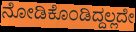
ನೋಡಿಕೊಂಡಿದ್ದಲ್ಲದೇ